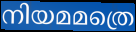
നിയമമത്രെ